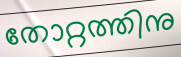
തോറ്റത്തിനു